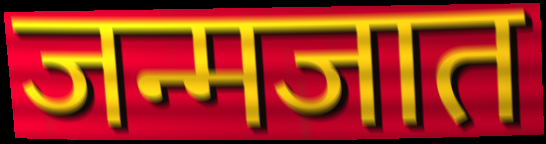
जन्मजात